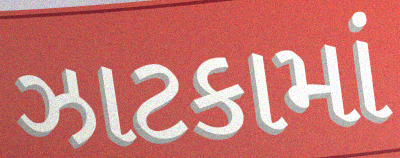
ઝાટકામાં